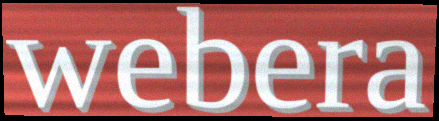
webera